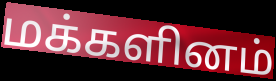
மக்களினம்